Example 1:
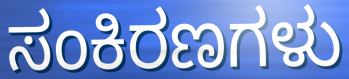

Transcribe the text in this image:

ಸಂಕಿರಣಗಳು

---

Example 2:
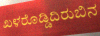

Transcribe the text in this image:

ಖಳರೊಡ್ಡಿದಿರುಬಿನ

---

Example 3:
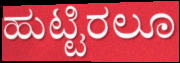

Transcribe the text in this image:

ಹುಟ್ಟಿರಲೂ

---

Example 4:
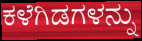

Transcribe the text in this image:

ಕಳೆಗಿಡಗಳನ್ನು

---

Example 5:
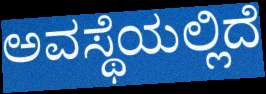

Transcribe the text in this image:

ಅವಸ್ಥೆಯಲ್ಲಿದೆ